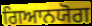
ਗਿਆਨਯੋਗ